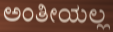
ಅಂತೀಯಲ್ಲ